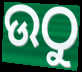
ଉଠୁ